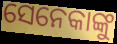
ସେନେକାଙ୍କୁ